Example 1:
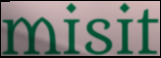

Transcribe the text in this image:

misit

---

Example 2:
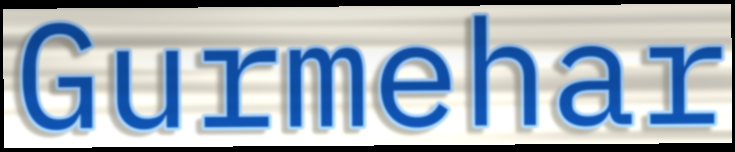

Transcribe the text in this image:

Gurmehar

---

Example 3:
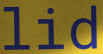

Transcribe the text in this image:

lid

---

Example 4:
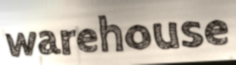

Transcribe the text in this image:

warehouse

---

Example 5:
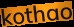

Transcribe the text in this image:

kothao